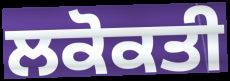
ਲਕੋਕਤੀ